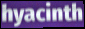
hyacinth